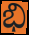
భి